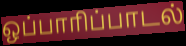
ஒப்பாரிப்பாடல்